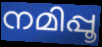
നമിപ്പൂ